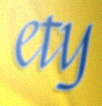
ety